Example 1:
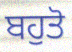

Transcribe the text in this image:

ਬਹੁਤੋ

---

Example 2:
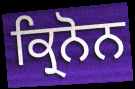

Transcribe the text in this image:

ਕ੍ਰਿਨੋਨ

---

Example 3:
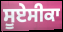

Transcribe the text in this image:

ਸੂਏਸੀਕਾ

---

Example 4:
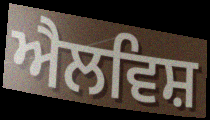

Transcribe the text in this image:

ਐਲਵਿਸ਼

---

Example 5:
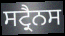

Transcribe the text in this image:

ਸਟ੍ਰੈਨਸ